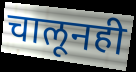
चालूनही